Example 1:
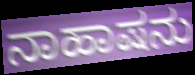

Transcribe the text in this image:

ನಾಹಾಷನು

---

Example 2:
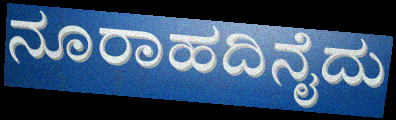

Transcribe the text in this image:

ನೂರಾಹದಿನೈದು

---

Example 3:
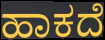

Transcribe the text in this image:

ಹಾಕದೆ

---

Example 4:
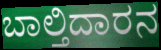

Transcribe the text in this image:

ಬಾಲ್ತಿದಾರನ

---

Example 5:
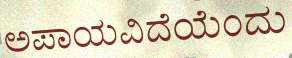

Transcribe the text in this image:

ಅಪಾಯವಿದೆಯೆಂದು